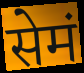
सेमं